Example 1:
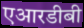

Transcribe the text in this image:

एआरडीबी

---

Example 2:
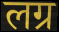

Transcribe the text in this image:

लग्र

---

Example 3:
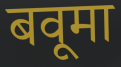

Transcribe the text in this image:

बवूमा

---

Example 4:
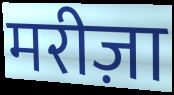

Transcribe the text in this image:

मरीज़ा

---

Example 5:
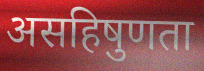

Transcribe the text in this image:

असहिषुणता